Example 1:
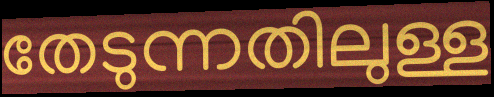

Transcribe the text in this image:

തേടുന്നതിലുള്ള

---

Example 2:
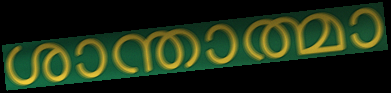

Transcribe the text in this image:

ശാന്താത്മാ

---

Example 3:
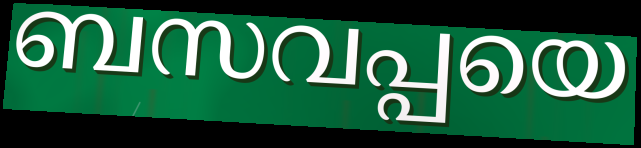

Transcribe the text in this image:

ബസവപ്പയെ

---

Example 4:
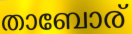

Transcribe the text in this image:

താബോര്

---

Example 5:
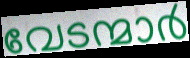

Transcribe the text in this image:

വേടന്മാർ